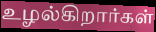
உழல்கிறார்கள்